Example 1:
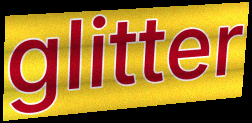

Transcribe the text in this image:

glitter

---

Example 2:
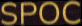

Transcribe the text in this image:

SPOC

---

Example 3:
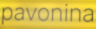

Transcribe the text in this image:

pavonina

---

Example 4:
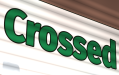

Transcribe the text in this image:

Crossed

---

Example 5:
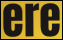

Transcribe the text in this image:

ere